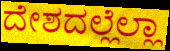
ದೇಶದಲ್ಲೆಲ್ಲಾ